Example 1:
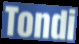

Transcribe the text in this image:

Tondi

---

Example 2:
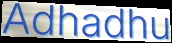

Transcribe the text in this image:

Adhadhu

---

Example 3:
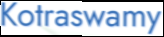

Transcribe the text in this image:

Kotraswamy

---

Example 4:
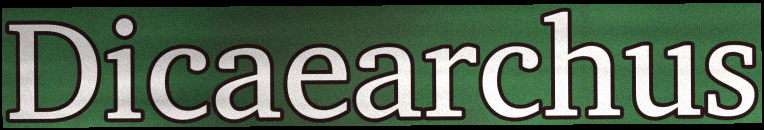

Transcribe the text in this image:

Dicaearchus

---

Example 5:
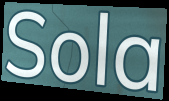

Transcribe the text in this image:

Sola